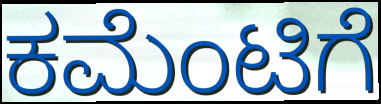
ಕಮೆಂಟಿಗೆ